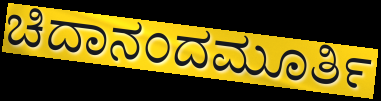
ಚಿದಾನಂದಮೂರ್ತಿ